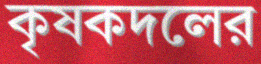
কৃষকদলের